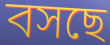
বসছে